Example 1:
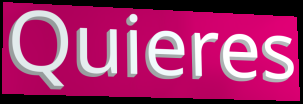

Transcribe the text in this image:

Quieres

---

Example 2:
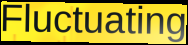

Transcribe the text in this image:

Fluctuating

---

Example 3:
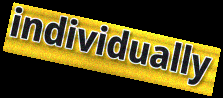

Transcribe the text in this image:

individually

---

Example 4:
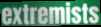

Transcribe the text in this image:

extremists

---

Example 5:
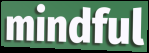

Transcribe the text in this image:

mindful